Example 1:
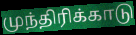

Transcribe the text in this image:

முந்திரிக்காடு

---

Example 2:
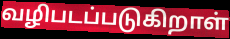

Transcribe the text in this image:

வழிபடப்படுகிறாள்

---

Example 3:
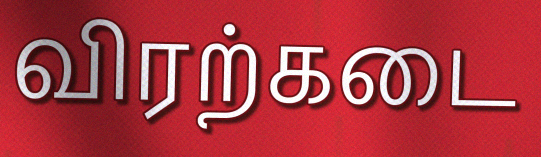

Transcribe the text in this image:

விரற்கடை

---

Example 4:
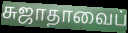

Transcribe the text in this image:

சுஜாதாவைப்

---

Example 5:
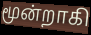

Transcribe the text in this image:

மூன்றாகி